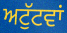
ਅਟੁੱਟਵਾਂ